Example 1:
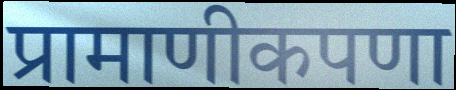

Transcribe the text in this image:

प्रामाणीकपणा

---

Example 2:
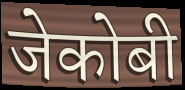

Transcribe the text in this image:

जेकोबी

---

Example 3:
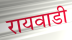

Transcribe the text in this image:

रायवाडी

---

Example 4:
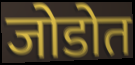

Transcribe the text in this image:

जोडोत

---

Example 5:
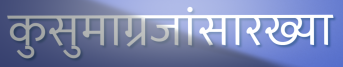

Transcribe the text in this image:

कुसुमाग्रजांसारख्या